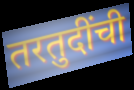
तरतुदींची